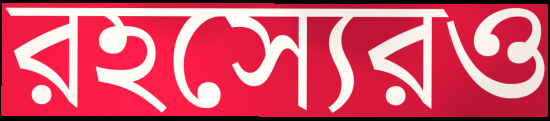
রহস্যেরও